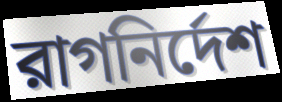
রাগনির্দেশ